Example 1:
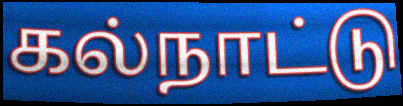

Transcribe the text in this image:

கல்நாட்டு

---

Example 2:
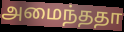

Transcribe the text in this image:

அமைந்ததா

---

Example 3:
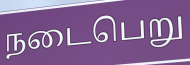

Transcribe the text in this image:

நடைபெறு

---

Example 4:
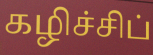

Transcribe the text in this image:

கழிச்சிப்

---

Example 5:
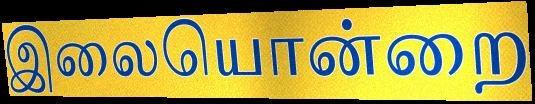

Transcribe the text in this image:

இலையொன்றை